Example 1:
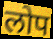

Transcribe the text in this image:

लोप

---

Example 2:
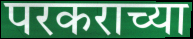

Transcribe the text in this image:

परकराच्या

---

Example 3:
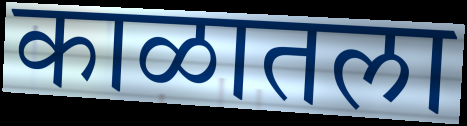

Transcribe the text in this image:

काळातला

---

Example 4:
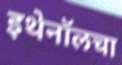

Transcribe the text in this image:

इथेनॉलचा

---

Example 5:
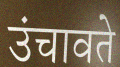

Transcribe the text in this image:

उंचावते